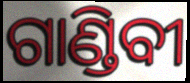
ଗାଣ୍ଡିବୀ